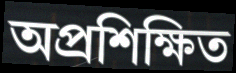
অপ্রশিক্ষিত